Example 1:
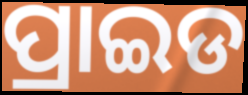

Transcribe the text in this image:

ପ୍ରାଇଡ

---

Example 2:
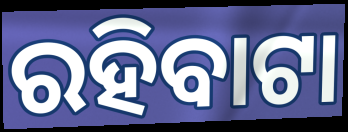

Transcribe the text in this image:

ରହିବାଟା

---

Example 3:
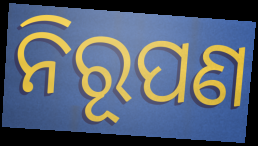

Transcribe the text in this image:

ନିରୂପଣ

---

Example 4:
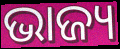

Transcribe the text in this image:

ଭାଜ୍ୟ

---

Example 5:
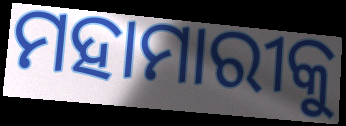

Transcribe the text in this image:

ମହାମାରୀକୁ